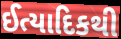
ઈત્યાદિકથી